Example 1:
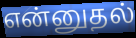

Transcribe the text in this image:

என்னுதல்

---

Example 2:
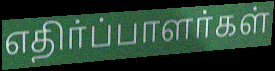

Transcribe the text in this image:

எதிர்ப்பாளர்கள்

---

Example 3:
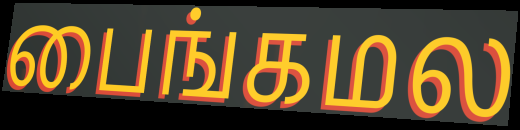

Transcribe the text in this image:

பைங்கமல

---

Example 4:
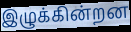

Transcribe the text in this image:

இழுக்கின்றன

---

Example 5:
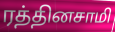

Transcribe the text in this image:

ரத்தினசாமி